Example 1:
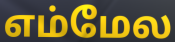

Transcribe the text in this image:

எம்மேல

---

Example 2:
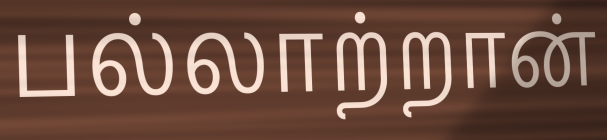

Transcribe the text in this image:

பல்லாற்றான்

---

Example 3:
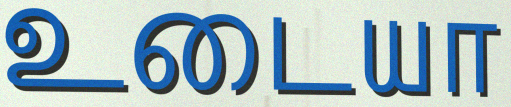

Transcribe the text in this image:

உடையா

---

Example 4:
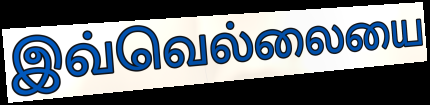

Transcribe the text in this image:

இவ்வெல்லையை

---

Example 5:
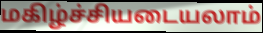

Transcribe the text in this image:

மகிழ்ச்சியடையலாம்